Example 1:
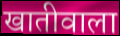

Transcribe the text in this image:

खातीवाला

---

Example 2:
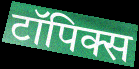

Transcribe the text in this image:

टॉपिक्स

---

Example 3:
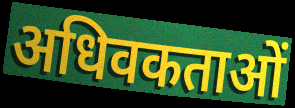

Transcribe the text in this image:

अधिवकताओं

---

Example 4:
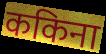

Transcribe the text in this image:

ककिना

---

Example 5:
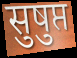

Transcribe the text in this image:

सुषुप्त